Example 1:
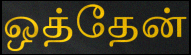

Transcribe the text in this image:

ஒத்தேன்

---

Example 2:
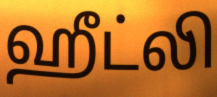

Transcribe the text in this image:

ஹீட்லி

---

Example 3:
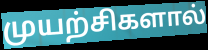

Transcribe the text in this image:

முயற்சிகளால்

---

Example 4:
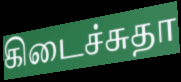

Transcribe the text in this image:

கிடைச்சுதா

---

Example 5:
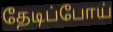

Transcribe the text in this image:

தேடிப்போய்